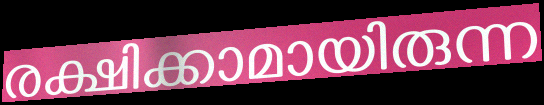
രക്ഷിക്കാമായിരുന്ന